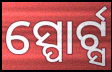
ସ୍ପୋର୍ଟ୍ସ